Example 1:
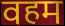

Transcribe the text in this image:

वहम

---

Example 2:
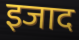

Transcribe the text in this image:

इजाद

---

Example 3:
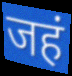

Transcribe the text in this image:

जहं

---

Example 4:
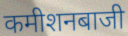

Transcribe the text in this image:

कमीशनबाजी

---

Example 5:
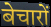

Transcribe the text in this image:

बेचारों